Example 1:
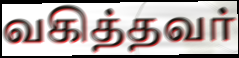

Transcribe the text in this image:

வகித்தவர்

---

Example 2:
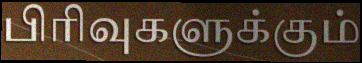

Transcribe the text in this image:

பிரிவுகளுக்கும்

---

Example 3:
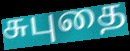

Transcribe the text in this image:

சுபுதை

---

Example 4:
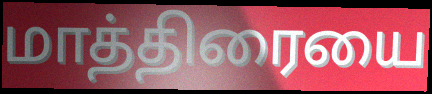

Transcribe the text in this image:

மாத்திரையை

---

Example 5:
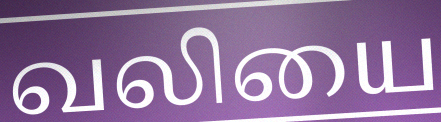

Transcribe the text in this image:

வலியை